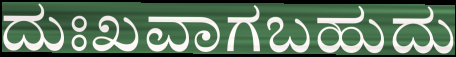
ದುಃಖವಾಗಬಹುದು